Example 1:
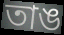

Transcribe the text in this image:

তাঙ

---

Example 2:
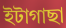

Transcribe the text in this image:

ইটাগাছা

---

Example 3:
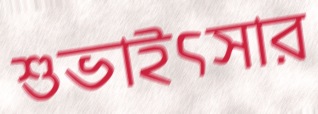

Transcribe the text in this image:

শুভাইৎসার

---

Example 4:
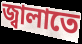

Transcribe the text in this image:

জ্বালাতে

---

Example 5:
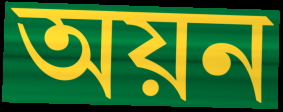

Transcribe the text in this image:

অয়ন